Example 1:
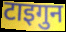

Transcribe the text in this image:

टाइगुन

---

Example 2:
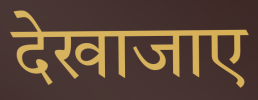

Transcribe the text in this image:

देखाजाए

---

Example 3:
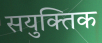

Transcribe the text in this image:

सयुक्तिक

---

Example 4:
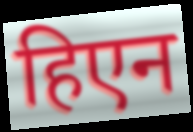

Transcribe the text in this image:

हिएन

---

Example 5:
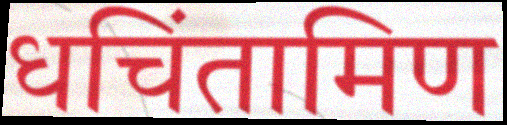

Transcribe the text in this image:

धचिंतामिण